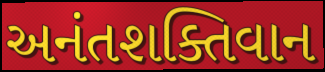
અનંતશક્તિવાન